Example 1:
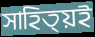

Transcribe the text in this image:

সাহিত্য়ই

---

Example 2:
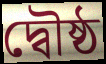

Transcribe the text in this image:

দ্বৌষ্ঠ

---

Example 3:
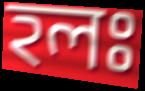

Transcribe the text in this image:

হলঃ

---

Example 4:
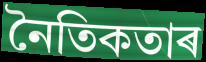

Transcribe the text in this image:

নৈতিকতাৰ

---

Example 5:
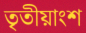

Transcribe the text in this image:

তৃতীয়াংশ